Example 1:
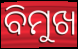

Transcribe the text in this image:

ବିମୁଖ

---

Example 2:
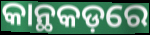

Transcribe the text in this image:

କାନ୍ଥକଡ଼ରେ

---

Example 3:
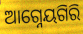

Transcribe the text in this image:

ଆଗ୍ନେୟଗିରି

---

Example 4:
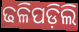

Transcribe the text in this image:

ଢଳିପଡ଼ିଲି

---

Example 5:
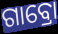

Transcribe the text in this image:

ଗାବ୍ରୋ